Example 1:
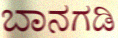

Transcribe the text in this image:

ಬಾನಗಡಿ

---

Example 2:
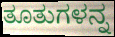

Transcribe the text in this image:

ತೂತುಗಳನ್ನ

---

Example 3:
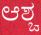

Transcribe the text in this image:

ಆಶ್ಚ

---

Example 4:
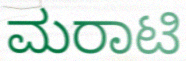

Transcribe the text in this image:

ಮರಾಟಿ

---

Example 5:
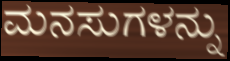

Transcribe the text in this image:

ಮನಸುಗಳನ್ನು